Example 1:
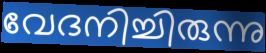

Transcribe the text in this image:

വേദനിച്ചിരുന്നു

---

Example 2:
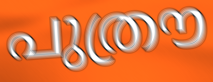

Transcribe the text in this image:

പുത്രൗ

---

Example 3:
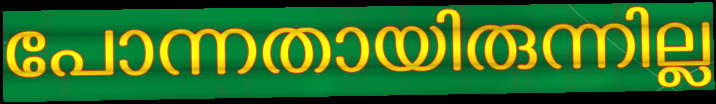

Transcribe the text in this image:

പോന്നതായിരുന്നില്ല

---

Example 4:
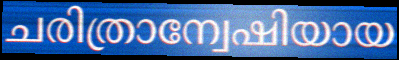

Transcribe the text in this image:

ചരിത്രാന്വേഷിയായ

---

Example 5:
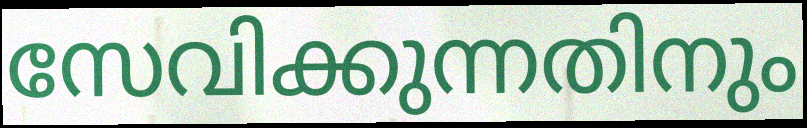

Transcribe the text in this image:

സേവിക്കുന്നതിനും